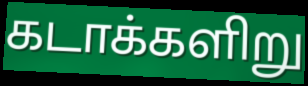
கடாக்களிறு